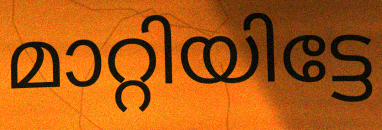
മാറ്റിയിട്ടേ